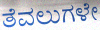
ತೆವಲುಗಳೇ